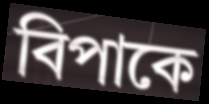
বিপাকে